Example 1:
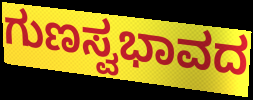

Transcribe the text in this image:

ಗುಣಸ್ವಭಾವದ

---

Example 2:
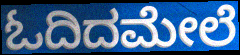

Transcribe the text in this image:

ಓದಿದಮೇಲೆ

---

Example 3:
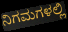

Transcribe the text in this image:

ನಿಗಮಗಳಲ್ಲಿ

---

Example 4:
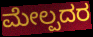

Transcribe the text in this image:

ಮೇಲ್ಪದರ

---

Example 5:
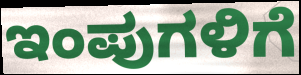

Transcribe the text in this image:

ಇಂಪುಗಳಿಗೆ